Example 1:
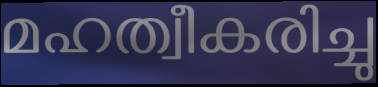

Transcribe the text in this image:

മഹത്വീകരിച്ചു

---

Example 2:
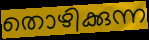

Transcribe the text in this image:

തൊഴിക്കുന്ന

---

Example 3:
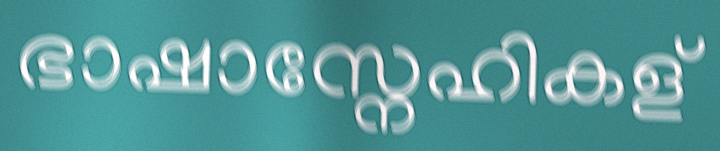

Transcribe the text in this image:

ഭാഷാസ്നേഹികള്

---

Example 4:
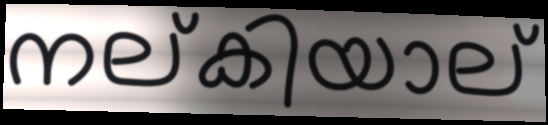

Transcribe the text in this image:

നല്കിയാല്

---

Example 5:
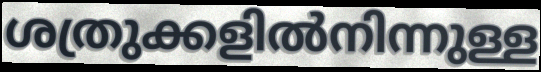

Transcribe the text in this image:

ശത്രുക്കളിൽനിന്നുള്ള